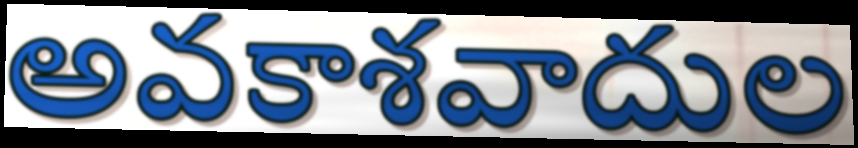
అవకాశవాదుల